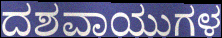
ದಶವಾಯುಗಳ